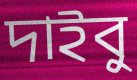
দাইবু